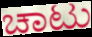
ಚಾಟು